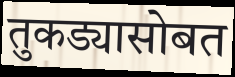
तुकड्यासोबत